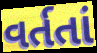
વર્તતાં